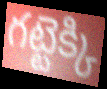
గట్టెక్కి